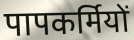
पापकर्मियों